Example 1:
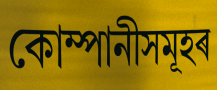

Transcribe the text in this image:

কোম্পানীসমূহৰ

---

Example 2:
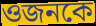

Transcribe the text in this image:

ওজনকে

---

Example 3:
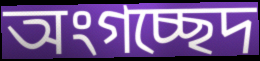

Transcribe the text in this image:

অংগচ্ছেদ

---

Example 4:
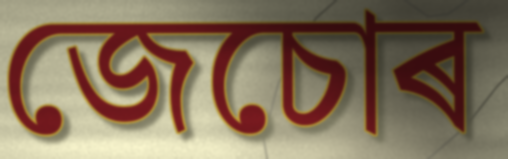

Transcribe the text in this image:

জেচোৰ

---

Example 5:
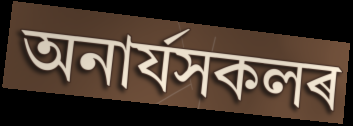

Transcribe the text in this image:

অনাৰ্যসকলৰ